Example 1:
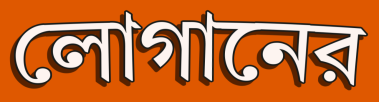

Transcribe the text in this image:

লোগানের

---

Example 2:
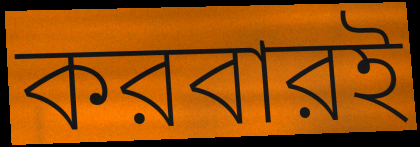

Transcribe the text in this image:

করবারই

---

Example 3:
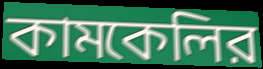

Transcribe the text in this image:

কামকেলির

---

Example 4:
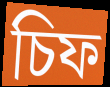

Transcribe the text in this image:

চিফ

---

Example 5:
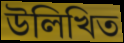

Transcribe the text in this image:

উলিখিত